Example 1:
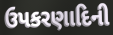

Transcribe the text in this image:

ઉપકરણાદિની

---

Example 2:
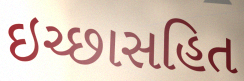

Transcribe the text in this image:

ઇચ્છાસહિત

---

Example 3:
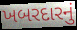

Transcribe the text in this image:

ખબરદારનું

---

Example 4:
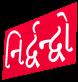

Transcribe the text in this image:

નિર્દ્વન્દ્વો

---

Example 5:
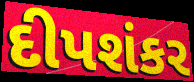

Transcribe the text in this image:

દીપશંકર